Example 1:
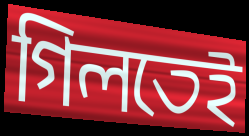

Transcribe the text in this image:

গিলতেই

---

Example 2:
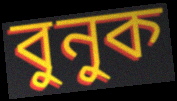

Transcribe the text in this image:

বুনুক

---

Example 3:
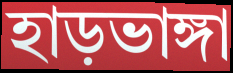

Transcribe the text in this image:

হাড়ভাঙ্গা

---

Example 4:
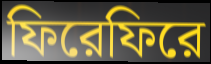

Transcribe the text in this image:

ফিরেফিরে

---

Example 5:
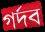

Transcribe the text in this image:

গর্দব